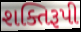
શક્તિરૂપી